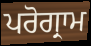
ਪਰੋਗ੍ਰਾਮ